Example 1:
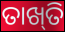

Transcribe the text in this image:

ତାଖ୍‍ତି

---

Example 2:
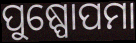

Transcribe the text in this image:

ପୁଷ୍ପୋପମା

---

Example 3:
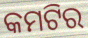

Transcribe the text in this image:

କମଟିର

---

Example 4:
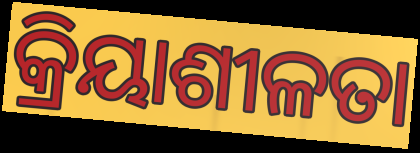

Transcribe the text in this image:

କ୍ରିୟାଶୀଳତା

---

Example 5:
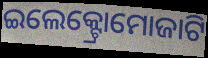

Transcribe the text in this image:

ଇଲେକ୍ଟ୍ରୋମୋଜାଟି